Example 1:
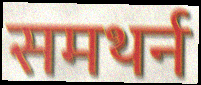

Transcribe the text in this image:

समथर्न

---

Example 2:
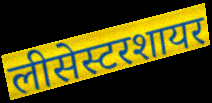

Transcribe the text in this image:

लीसेस्टरशायर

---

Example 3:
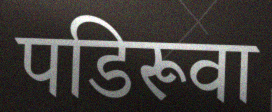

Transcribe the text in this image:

पडिरूवा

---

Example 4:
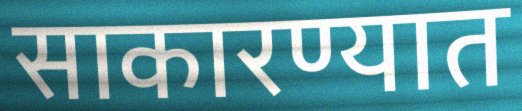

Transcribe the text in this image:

साकारण्यात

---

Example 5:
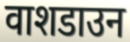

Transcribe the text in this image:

वाशडाउन